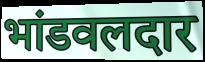
भांडवलदार